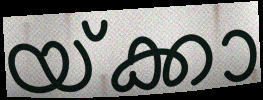
യ്‌ക്കാ